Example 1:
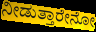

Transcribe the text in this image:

ನೀಡುತ್ತಾರೇನೋ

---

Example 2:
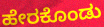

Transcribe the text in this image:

ಹೇರಕೊಂಡು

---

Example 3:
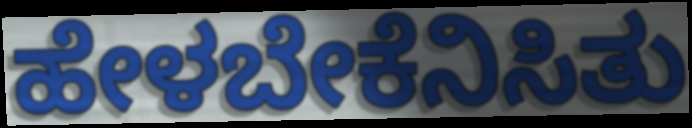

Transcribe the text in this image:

ಹೇಳಬೇಕೆನಿಸಿತು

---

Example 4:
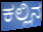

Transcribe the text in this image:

ಕಲ್ಲಿನ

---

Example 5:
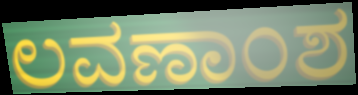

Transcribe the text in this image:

ಲವಣಾಂಶ